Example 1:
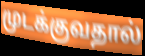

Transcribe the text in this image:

முடக்குவதால்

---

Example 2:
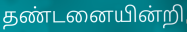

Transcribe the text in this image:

தண்டனையின்றி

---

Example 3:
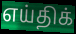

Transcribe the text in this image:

எய்திக்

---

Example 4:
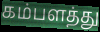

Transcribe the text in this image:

கம்பளத்து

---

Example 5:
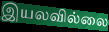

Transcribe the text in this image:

இயலவில்லை